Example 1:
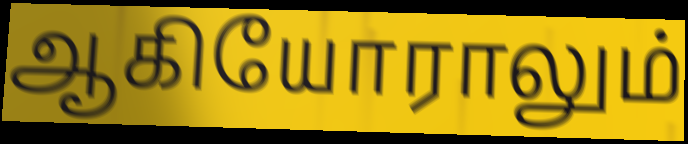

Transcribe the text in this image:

ஆகியோராலும்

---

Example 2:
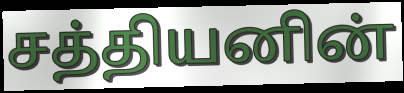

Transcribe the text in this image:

சத்தியனின்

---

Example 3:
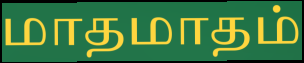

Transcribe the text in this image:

மாதமாதம்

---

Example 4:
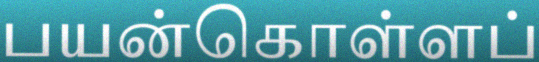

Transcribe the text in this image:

பயன்கொள்ளப்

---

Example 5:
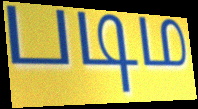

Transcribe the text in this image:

படிம